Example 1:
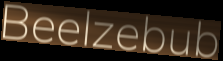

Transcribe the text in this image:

Beelzebub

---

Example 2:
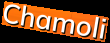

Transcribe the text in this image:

Chamoli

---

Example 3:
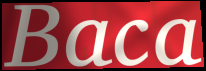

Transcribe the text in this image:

Baca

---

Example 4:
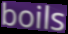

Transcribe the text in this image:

boils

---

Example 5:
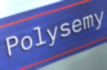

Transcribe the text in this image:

Polysemy